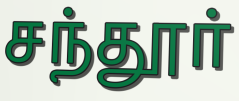
சந்தூர்